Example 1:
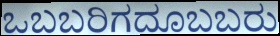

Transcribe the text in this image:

ಒಬಬರಿಗದೂಬಬರು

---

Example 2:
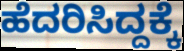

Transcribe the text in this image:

ಹೆದರಿಸಿದ್ದಕ್ಕೆ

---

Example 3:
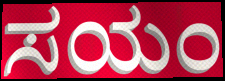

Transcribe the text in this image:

ಸಯಂ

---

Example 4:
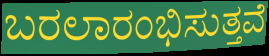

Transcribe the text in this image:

ಬರಲಾರಂಭಿಸುತ್ತವೆ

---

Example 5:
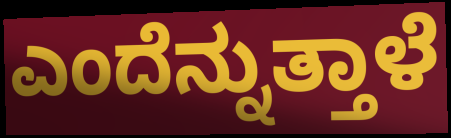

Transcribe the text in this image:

ಎಂದೆನ್ನುತ್ತಾಳೆ